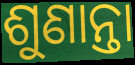
ଶୁଣାନ୍ତା